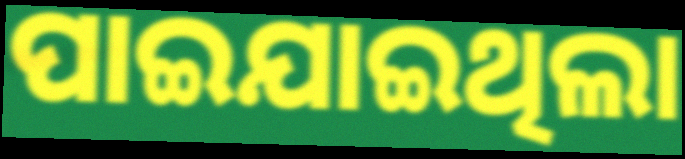
ପାଇଯାଇଥିଲା